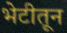
भेटीतून